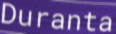
Duranta